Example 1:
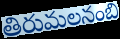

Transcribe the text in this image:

తిరుమలనంబి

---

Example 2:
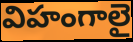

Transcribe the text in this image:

విహంగాలై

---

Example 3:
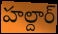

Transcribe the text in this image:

హల్దార్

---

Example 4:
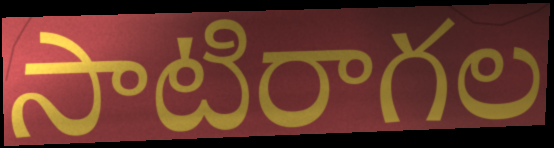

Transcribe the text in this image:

సాటిరాగల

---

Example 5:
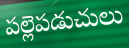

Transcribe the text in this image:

పల్లెపడుచులు